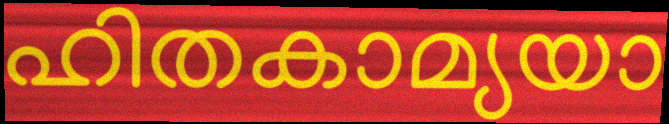
ഹിതകാമ്യയാ